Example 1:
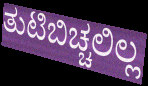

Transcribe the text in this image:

ತುಟಿಬಿಚ್ಚಲಿಲ್ಲ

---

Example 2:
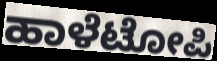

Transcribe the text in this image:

ಹಾಳೆಟೋಪಿ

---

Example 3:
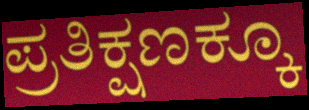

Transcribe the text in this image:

ಪ್ರತಿಕ್ಷಣಕ್ಕೂ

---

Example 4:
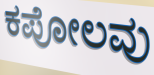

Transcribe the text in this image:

ಕಪೋಲವು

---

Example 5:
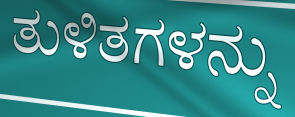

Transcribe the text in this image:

ತುಳಿತಗಳನ್ನು